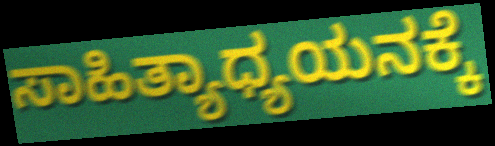
ಸಾಹಿತ್ಯಾಧ್ಯಯನಕ್ಕೆ